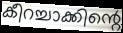
കീറച്ചാക്കിന്റെ